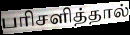
பரிசளித்தால்